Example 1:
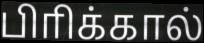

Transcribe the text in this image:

பிரிக்கால்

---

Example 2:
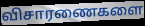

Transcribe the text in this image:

விசாரணைகளை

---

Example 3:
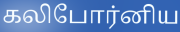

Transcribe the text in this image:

கலிபோர்னிய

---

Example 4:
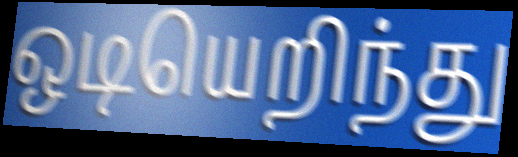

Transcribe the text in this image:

ஒடியெறிந்து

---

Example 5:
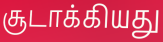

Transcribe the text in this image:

சூடாக்கியது